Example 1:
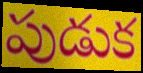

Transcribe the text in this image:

పుడుక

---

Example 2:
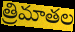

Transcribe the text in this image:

త్రిమాతల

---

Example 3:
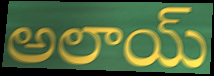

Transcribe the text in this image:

అలాయ్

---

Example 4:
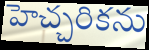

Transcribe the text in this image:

హెచ్చరికను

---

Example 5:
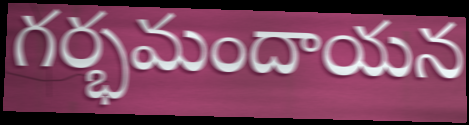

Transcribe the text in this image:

గర్భమందాయన